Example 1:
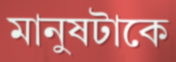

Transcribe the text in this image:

মানুষটাকে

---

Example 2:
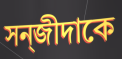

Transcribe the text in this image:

সন্জীদাকে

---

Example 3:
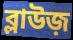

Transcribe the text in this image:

ব্লাউজ়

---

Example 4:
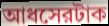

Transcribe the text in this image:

আধসেরটাক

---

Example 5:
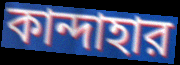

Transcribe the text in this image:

কান্দাহার